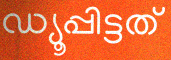
ഡ്യൂപ്പിട്ടത്